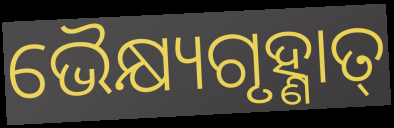
ଭୈକ୍ଷ୍ୟଗୃହ୍ଣାତ୍